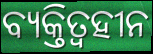
ବ୍ୟକ୍ତିତ୍ୱହୀନ